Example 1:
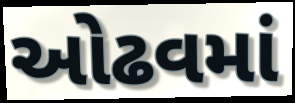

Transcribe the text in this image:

ઓઢવમાં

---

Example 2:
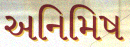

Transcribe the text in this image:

અનિમિષ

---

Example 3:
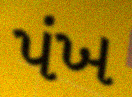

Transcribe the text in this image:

પંખ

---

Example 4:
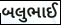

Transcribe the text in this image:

બલુભાઈ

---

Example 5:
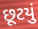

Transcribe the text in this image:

છૂટયું